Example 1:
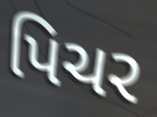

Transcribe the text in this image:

પિચર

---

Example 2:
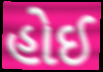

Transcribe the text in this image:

હોઈ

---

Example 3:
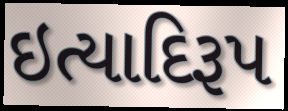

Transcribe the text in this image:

ઇત્યાદિરૂપ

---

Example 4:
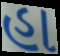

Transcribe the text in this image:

હા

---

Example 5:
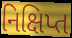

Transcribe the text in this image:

નિક્ષિપ્ત